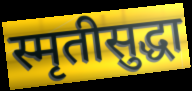
स्मृतीसुद्धा